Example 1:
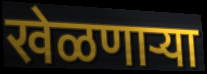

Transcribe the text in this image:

खेळणाऱ्या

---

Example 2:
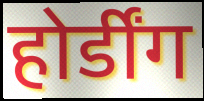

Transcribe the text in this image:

होर्डींग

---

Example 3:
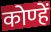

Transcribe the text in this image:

कोण्हें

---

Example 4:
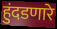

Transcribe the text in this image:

हुंदडणारे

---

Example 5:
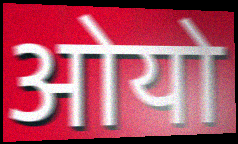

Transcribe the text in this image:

ओयो